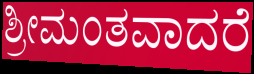
ಶ್ರೀಮಂತವಾದರೆ